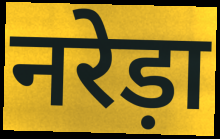
नरेड़ा